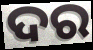
ଦର